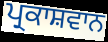
ਪ੍ਰਕਾਸ਼ਵਾਨ